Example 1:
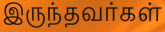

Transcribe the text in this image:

இருந்தவர்கள்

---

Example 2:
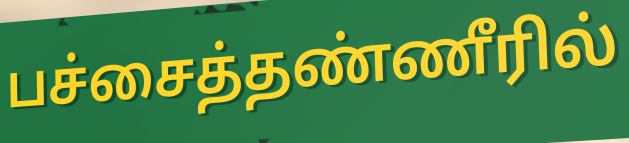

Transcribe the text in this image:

பச்சைத்தண்ணீரில்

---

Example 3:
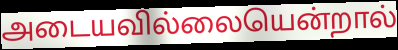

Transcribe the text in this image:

அடையவில்லையென்றால்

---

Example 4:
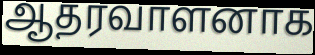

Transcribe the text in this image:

ஆதரவாளனாக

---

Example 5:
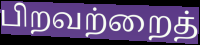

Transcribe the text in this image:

பிறவற்றைத்